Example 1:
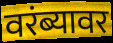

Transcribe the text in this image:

वरंब्यावर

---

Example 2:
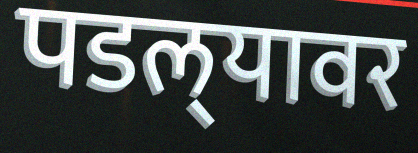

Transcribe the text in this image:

पडल्यावर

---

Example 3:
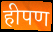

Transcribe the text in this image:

हीपण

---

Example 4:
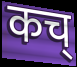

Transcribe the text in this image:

कच्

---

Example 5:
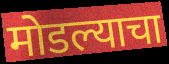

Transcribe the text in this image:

मोडल्याचा